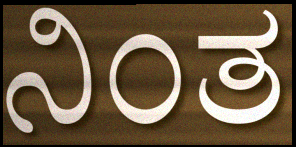
ನಿಂತ